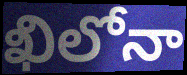
ఖిలోనా